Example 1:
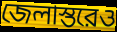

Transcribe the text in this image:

জেলাস্তরেও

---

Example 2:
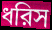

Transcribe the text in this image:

ধরিস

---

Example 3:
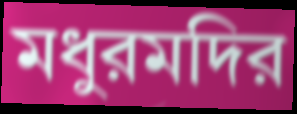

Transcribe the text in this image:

মধুরমদির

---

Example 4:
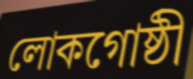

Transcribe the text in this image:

লোকগোষ্ঠী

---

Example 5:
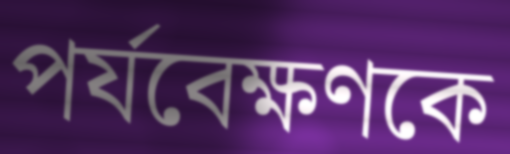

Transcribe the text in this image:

পর্যবেক্ষণকে